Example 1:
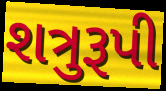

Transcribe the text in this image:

શત્રુરૂપી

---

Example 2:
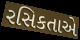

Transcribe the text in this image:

રસિકતાએ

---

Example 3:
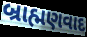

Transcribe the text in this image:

બ્રાહ્મણવાદ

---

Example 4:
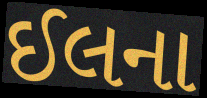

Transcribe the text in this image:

ઈલના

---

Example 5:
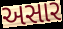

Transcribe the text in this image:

અસાર